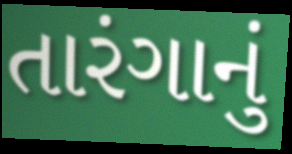
તારંગાનું